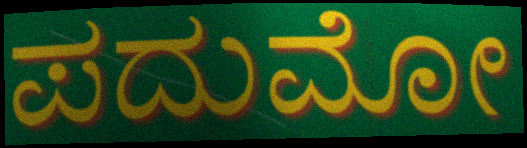
ಪದುಮೋ